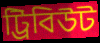
ট্রিবিউট